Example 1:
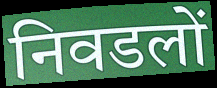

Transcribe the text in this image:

निवडलों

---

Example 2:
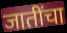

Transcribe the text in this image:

जातींचा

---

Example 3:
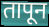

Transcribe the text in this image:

तापून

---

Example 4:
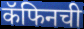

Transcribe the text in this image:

कॅफिनची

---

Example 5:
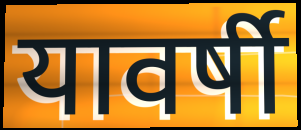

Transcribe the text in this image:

यावर्षी